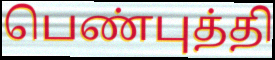
பெண்புத்தி